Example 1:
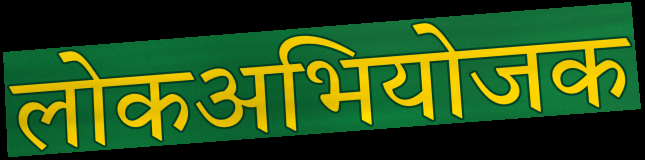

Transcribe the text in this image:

लोकअभियोजक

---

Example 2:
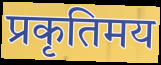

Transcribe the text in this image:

प्रकृतिमय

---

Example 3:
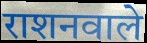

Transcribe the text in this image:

राशनवाले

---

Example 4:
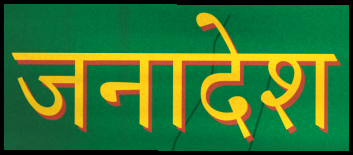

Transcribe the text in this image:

जनादेश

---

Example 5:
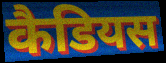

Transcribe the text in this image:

कैडियस